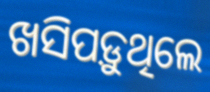
ଖସିପଡ଼ୁଥିଲେ